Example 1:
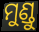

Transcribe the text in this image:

ମୁଣ୍ଡୁ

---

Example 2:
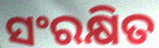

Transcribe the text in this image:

ସଂରକ୍ଷିତ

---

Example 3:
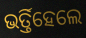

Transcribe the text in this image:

ଭର୍ତ୍ତିହେଲେ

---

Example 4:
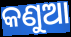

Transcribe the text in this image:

କଣୁଆ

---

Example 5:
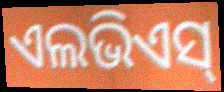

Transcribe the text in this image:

ଏଲଭିଏସ୍